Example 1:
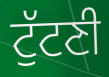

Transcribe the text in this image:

ਟੁੱਟਣੀ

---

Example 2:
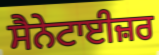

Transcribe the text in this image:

ਸੈਨੇਟਾਈਜ਼ਰ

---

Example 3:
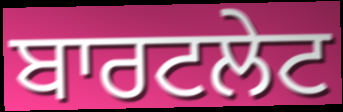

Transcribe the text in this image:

ਬਾਰਟਲੇਟ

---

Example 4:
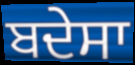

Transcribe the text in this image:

ਬਦੇਸਾ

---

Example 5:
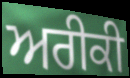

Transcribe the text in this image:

ਅਰੀਕੀ